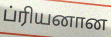
ப்ரியனான